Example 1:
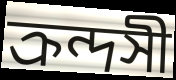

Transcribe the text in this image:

ক্রন্দসী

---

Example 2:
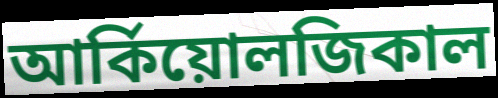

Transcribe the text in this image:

আর্কিয়োলজিকাল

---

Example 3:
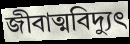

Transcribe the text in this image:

জীবাত্মবিদ্যুৎ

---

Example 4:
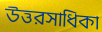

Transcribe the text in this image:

উত্তরসাধিকা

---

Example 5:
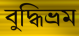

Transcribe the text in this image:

বুদ্ধিভ্রম